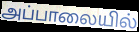
அப்பாலையில்